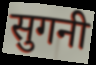
सुगनी